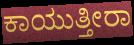
ಕಾಯುತ್ತೀರಾ